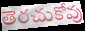
తెరచుకోవు